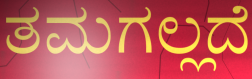
ತಮಗಲ್ಲದೆ